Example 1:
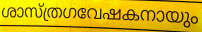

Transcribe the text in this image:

ശാസ്ത്രഗവേഷകനായും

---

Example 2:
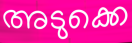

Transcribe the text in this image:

അടുക്കെ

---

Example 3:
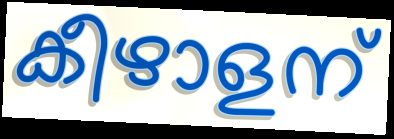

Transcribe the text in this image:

കീഴാളന്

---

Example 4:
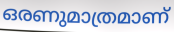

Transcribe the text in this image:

ഒരണുമാത്രമാണ്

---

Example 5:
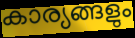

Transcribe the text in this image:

കാര്യങ്ങളും